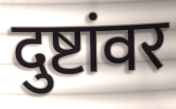
दुष्टांवर